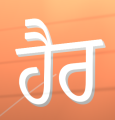
ਹੈਰ